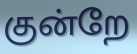
குன்றே